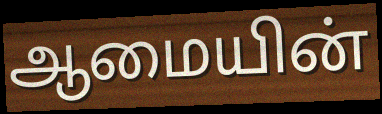
ஆமையின்